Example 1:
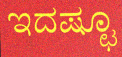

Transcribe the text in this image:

ಇದಷ್ಟೂ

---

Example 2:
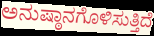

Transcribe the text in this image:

ಅನುಷ್ಠಾನಗೊಳಿಸುತ್ತಿದೆ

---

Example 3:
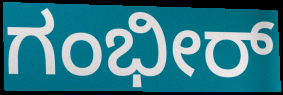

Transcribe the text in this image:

ಗಂಭೀರ್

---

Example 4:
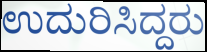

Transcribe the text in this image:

ಉದುರಿಸಿದ್ದರು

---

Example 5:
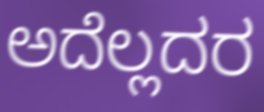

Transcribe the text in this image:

ಅದೆಲ್ಲದರ